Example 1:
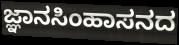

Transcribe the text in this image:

ಜ್ಞಾನಸಿಂಹಾಸನದ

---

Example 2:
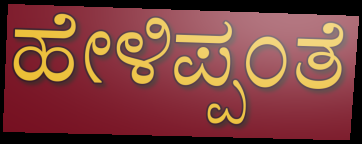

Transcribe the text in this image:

ಹೇಳಿಪ್ಪಂತೆ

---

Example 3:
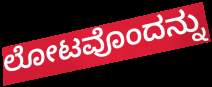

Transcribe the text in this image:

ಲೋಟವೊಂದನ್ನು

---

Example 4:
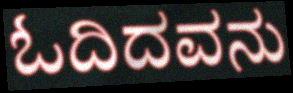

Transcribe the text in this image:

ಓದಿದವನು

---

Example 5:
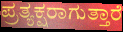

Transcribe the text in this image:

ಪ್ರತ್ಯಕ್ಷರಾಗುತ್ತಾರೆ